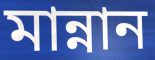
মান্নান